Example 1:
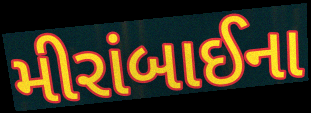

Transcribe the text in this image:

મીરાંબાઈના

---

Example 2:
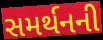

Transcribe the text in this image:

સમર્થનની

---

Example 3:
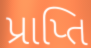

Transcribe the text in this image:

પ્રાપ્તિ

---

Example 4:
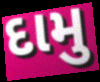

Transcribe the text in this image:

દામુ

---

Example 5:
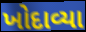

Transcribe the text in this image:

ખોદાવ્યા